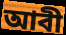
আবী